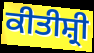
ਕੀਤੀਸ਼੍ਰੀ